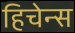
हिचेन्स